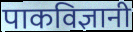
पाकविज्ञानी